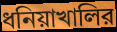
ধনিয়াখালির